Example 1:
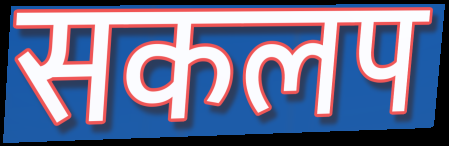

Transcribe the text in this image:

सकलप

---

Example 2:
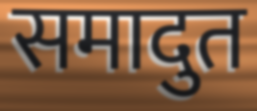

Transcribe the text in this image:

समादुत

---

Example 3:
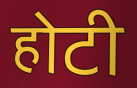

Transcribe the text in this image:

होटी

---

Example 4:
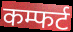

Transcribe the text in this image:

कम्फर्ट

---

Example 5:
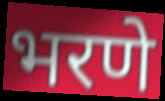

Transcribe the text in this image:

भरणे